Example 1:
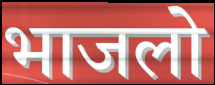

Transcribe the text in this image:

भाजलो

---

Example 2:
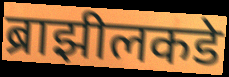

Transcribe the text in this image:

ब्राझीलकडे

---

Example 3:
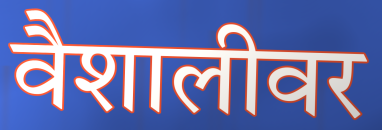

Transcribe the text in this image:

वैशालीवर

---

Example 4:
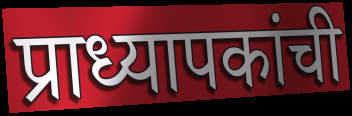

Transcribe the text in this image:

प्राध्यापकांची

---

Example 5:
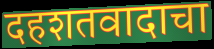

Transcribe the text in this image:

दहशतवादाचा